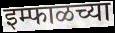
इम्फाळच्या